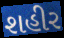
શહીર